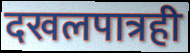
दखलपात्रही